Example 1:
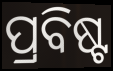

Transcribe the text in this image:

ପ୍ରବିଷ୍ଟ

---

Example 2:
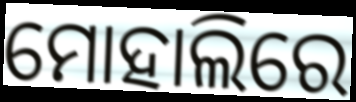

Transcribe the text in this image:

ମୋହାଲିରେ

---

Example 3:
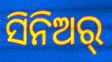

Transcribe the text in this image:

ସିନିଅର୍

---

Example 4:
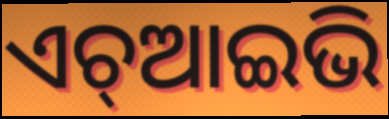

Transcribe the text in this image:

ଏଚ୍ଆଇଭି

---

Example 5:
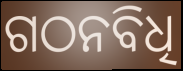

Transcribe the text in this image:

ଗଠନବିଧି